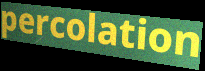
percolation